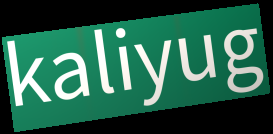
kaliyug